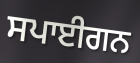
ਸਪਾਈਗਨ